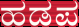
ಹಡಪ